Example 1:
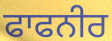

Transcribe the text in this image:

ਫਾਫਨੀਰ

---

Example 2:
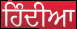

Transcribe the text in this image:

ਹਿੰਦੀਆ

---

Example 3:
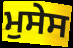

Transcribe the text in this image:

ਮੁਸੇਸ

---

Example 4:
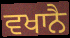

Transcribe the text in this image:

ਵਖਾਨੈ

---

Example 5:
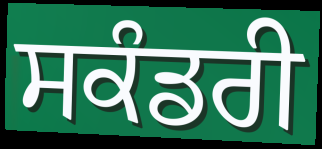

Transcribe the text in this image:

ਸਕੰਡਰੀ